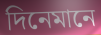
দিনেমানে